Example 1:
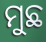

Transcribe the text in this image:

ମୁଛ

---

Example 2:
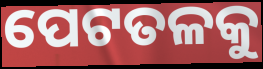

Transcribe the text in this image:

ପେଟତଳକୁ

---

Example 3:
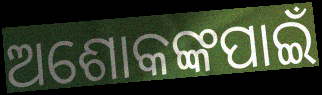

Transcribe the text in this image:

ଅଶୋକଙ୍କପାଇଁ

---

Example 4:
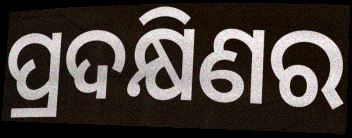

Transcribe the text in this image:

ପ୍ରଦକ୍ଷିଣର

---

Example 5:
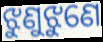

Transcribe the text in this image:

ଝୁଣୁଝୁଣେ